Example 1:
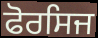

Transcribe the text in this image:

ਫੋਰਸਿਜ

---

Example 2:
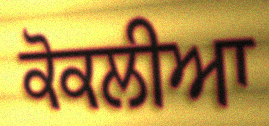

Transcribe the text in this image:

ਕੋਕਲੀਆ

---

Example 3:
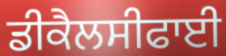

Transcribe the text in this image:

ਡੀਕੈਲਸੀਫਾਈ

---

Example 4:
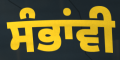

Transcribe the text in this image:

ਸੰਭਾਂਵੀ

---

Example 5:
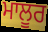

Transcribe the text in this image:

ਮਾਲੂਰ